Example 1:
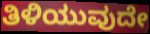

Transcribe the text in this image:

ತಿಳಿಯುವುದೇ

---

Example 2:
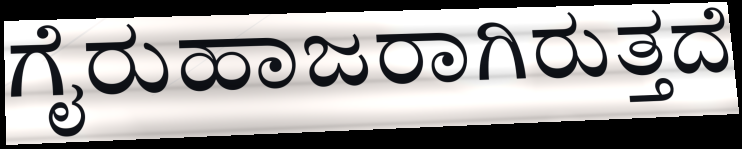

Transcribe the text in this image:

ಗೈರುಹಾಜರಾಗಿರುತ್ತದೆ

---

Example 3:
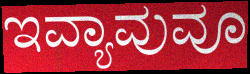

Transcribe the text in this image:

ಇವ್ಯಾವುವೂ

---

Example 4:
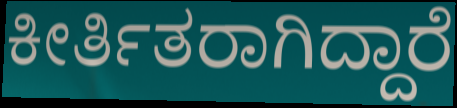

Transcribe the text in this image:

ಕೀರ್ತಿತರಾಗಿದ್ದಾರೆ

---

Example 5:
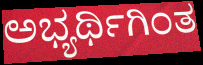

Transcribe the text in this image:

ಅಭ್ಯರ್ಥಿಗಿಂತ